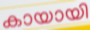
കായായി